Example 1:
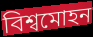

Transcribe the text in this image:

বিশ্বমোহন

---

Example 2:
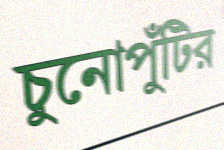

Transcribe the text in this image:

চুনোপুঁটির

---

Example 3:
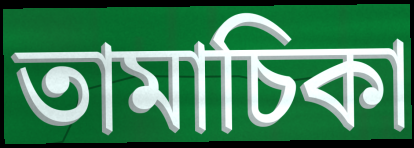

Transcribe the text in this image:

তামাচিকা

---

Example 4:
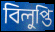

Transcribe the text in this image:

বিলুপ্তি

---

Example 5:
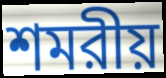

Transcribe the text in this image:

শমরীয়